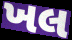
ખલ